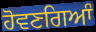
ਹੋਵਣਗਿਆੰ